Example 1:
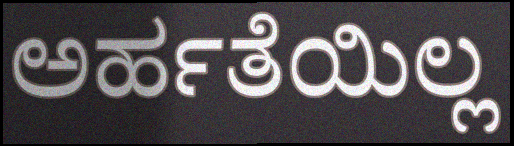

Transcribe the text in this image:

ಅರ್ಹತೆಯಿಲ್ಲ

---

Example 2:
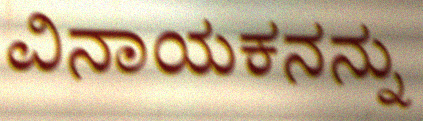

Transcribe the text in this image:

ವಿನಾಯಕನನ್ನು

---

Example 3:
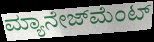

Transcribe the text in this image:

ಮ್ಯಾನೇಜ್‍ಮೆಂಟ್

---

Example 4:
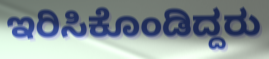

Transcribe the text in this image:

ಇರಿಸಿಕೊಂಡಿದ್ದರು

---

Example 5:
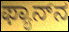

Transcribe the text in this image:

ಫ್ಯಾನ್‌ನ